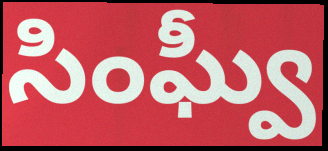
సింఘ్వీ